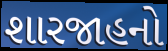
શારજાહનો